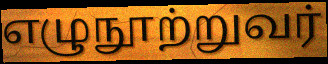
எழுநூற்றுவர்